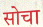
सोचा